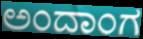
ಅಂದಾಂಗ